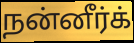
நன்னீர்க்